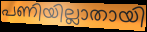
പണിയില്ലാതായി